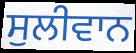
ਸੁਲੀਵਾਨ